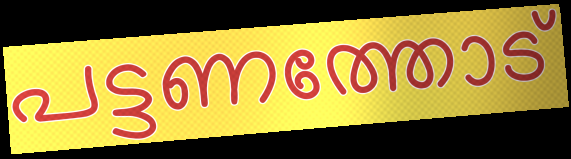
പട്ടണത്തോട്